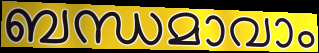
ബന്ധമാവാം